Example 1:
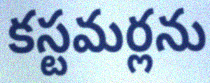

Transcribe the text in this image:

కస్టమర్లను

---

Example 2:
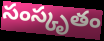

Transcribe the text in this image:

సంస్కృతం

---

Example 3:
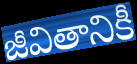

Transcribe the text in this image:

జీవితానికీ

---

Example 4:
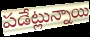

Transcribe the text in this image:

పడేట్లున్నాయి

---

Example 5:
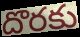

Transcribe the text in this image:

దొరకు